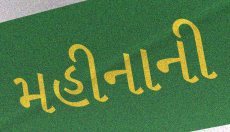
મહીનાની